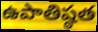
ఉపాతిష్ఠత